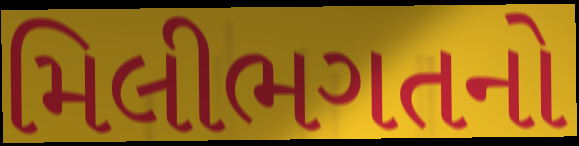
મિલીભગતનો